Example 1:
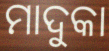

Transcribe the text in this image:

ମାଦୁକା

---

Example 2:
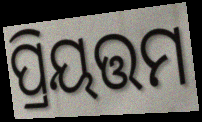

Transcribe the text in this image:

ପ୍ରିୟତ୍ତମ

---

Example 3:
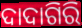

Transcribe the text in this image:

ଦାଦାଗିରି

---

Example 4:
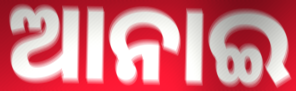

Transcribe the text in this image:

ଆନାଇ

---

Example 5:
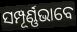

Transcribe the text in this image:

ସମ୍ପୂର୍ଣ୍ଣଭାବେ